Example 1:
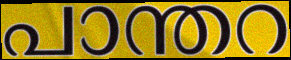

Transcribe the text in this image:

പാന്തറ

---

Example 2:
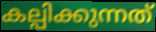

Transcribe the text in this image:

കല്പിക്കുന്നത്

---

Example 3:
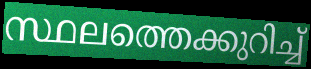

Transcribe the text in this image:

സ്ഥലത്തെക്കുറിച്ച്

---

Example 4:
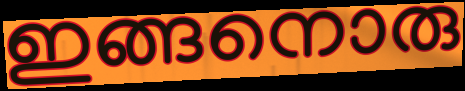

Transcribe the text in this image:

ഇങ്ങനൊരു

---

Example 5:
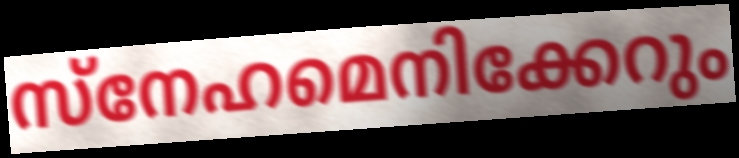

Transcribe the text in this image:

സ്നേഹമെനിക്കേറും